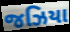
જઝિયા